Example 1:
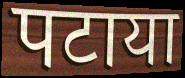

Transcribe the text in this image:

पटाया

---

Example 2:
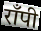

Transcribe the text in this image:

राँपी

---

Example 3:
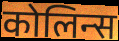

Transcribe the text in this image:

कोलिन्स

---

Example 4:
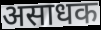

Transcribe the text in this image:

असाधक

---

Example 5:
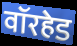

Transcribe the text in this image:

वॉरहेड